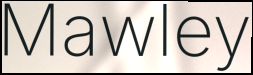
Mawley